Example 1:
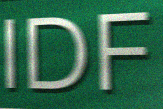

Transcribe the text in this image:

IDF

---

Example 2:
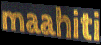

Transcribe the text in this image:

maahiti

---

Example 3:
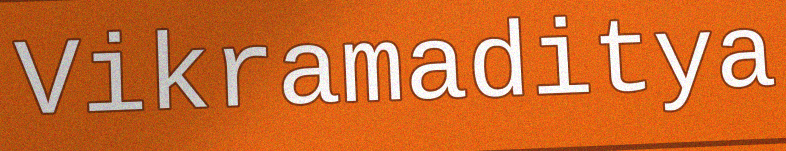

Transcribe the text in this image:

Vikramaditya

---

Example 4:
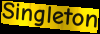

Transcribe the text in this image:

Singleton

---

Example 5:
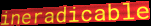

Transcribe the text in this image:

ineradicable